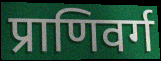
प्राणिवर्ग